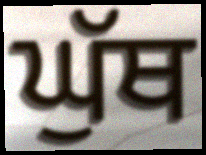
ਘੁੱਥ